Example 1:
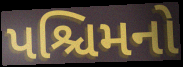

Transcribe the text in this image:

પશ્ચિમનો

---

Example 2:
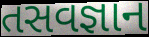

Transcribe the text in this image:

તસવજ્ઞાન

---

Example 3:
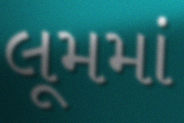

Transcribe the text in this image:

લૂમમાં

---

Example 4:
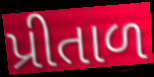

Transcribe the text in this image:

પ્રીતાળ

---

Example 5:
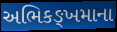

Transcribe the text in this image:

અભિકઙ્ખમાના